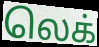
லெக்